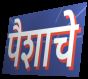
पैशाचे